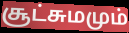
சூட்சுமமும்